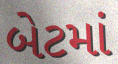
બેટમાં